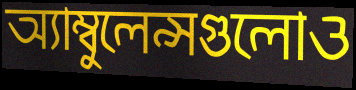
অ্যাম্বুলেন্সগুলোও